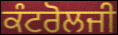
ਕੰਟਰੋਲਜੀ